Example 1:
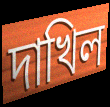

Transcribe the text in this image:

দাখিল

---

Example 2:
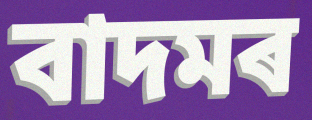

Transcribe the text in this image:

বাদমৰ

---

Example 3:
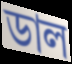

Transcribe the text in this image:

ডাল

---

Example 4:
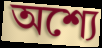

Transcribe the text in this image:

অশ্যে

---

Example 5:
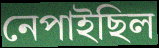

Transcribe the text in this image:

নেপাইছিল